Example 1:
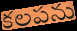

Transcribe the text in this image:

కలపను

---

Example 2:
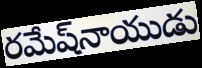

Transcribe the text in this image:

రమేష్‌నాయుడు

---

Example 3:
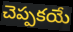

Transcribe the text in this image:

చెప్పకయే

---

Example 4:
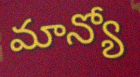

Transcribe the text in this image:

మాన్యో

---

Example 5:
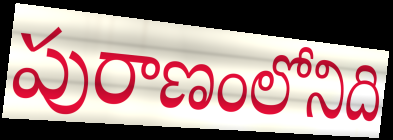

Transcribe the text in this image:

పురాణంలోనిది